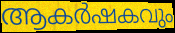
ആകർഷകവും